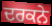
ਦਰਕਨੇ